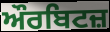
ਔਰਬਿਟਜ਼